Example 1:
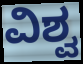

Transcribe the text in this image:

ವಿಶ್ವ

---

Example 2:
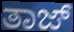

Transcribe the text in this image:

ತಾಜ್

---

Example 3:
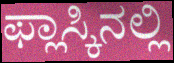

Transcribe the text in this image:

ಫ್ಲಾಸ್ಕಿನಲ್ಲಿ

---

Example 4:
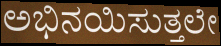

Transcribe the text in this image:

ಅಭಿನಯಿಸುತ್ತಲೇ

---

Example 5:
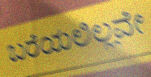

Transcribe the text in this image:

ಬರೆಯಲಿಲ್ಲವೇ